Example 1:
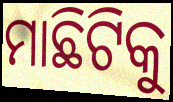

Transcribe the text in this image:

ମାଛିଟିକୁ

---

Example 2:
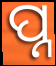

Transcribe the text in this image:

ପ୍ନ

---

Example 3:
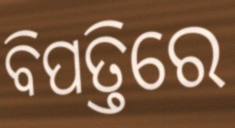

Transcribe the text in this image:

ବିପତ୍ତିରେ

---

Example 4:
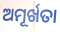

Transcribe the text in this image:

ଅମୂର୍ଖତା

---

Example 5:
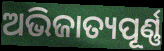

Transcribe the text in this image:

ଅଭିଜାତ୍ୟପୂର୍ଣ୍ଣ